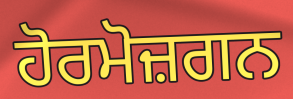
ਹੋਰਮੋਜ਼ਗਨ